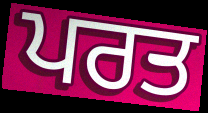
ਪਰਤ